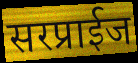
सरप्राईज